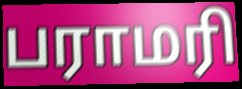
பராமரி